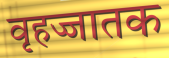
वृहज्जातक